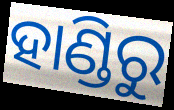
ହାଣ୍ଡିରୁ